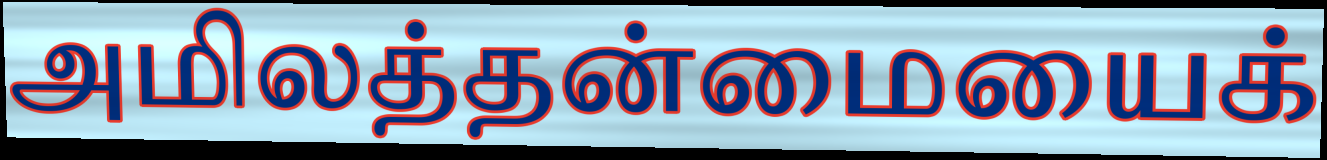
அமிலத்தன்மையைக்